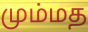
மும்மத